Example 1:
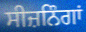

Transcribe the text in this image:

ਸੀਜ਼ਨਿੰਗਾਂ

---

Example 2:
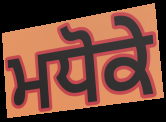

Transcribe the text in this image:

ਮਧੋਕੇ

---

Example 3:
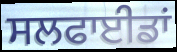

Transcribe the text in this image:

ਸਲਫਾਈਡਾਂ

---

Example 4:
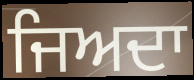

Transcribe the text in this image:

ਜਿਅਦਾ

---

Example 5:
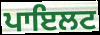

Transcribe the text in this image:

ਪਾਇਲਟ